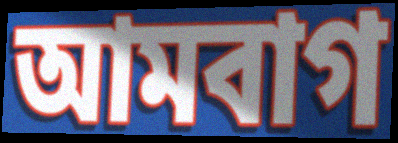
আমবাগ